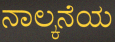
ನಾಲ್ಕನೆಯ